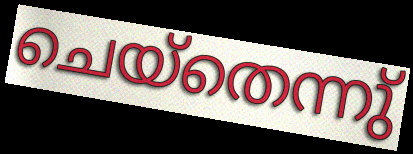
ചെയ്തെന്നു്